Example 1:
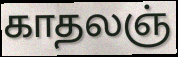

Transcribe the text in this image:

காதலஞ்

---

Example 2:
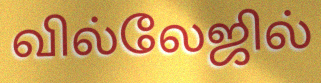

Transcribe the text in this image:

வில்லேஜில்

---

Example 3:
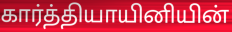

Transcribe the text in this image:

கார்த்தியாயினியின்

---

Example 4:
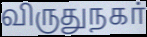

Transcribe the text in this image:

விருதுநகர்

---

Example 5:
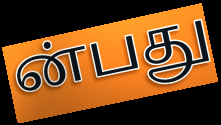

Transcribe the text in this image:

ன்பது